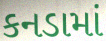
કનડામાં